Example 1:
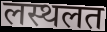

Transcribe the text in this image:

लस्थलत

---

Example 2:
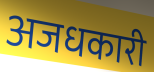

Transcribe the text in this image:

अजधकारी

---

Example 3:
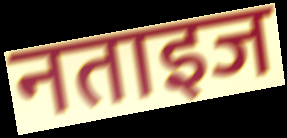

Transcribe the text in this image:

नताइज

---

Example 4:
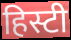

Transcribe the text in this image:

हिस्टी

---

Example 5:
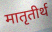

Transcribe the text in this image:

मातृतीर्थ